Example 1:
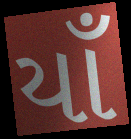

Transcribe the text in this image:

યાઁ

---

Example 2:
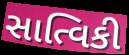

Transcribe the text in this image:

સાત્વિકી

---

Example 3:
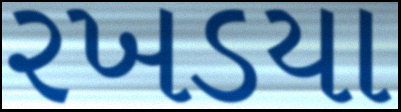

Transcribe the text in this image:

રખડયા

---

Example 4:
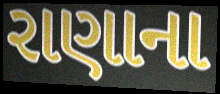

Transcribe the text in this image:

રાણાના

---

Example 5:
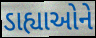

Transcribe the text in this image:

ડાહ્યાઓને